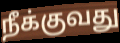
நீக்குவது